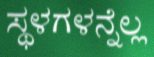
ಸ್ಥಳಗಳನ್ನೆಲ್ಲ